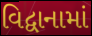
વિદ્વાનામાં